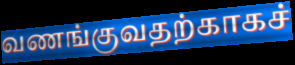
வணங்குவதற்காகச்